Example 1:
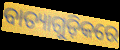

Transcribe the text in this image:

ବାତ୍ୟାଗୁଡ଼ିକରେ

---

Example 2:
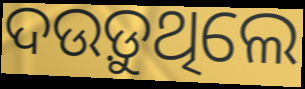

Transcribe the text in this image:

ଦଉଡ଼ୁଥିଲେ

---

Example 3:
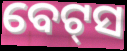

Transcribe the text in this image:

ବେଟ୍‍ସ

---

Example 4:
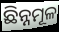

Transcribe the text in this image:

ଛିନ୍ନମୂଳ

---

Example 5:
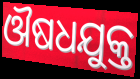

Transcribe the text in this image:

ଔଷଧଯୁକ୍ତ